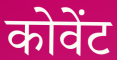
कोवेंट